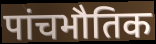
पांचभौतिक